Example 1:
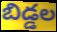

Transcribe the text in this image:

బిడ్డల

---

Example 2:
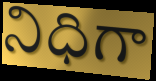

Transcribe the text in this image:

నిధిగా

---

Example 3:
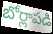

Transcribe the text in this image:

బోర్లాపడి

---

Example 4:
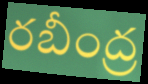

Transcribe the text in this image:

రబీంద్ర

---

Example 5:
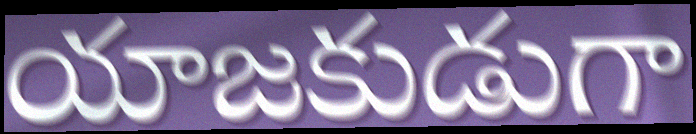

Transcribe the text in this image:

యాజకుడుగా